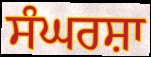
ਸੰਘਰਸ਼ਾ